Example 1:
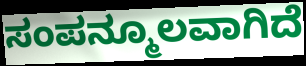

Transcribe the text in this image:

ಸಂಪನ್ಮೂಲವಾಗಿದೆ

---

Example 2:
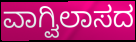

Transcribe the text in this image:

ವಾಗ್ವಿಲಾಸದ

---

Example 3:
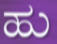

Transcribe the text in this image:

ಹು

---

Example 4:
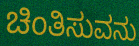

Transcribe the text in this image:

ಚಿಂತಿಸುವನು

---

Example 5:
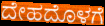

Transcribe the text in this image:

ದೇಹದೊಳಗೆ